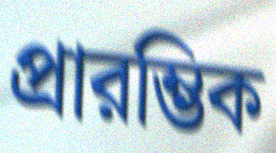
প্রারম্ভিক